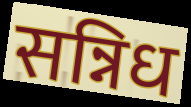
सन्निध